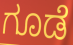
ಗೂಡೆ